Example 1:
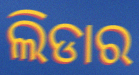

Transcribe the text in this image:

ଲିଡାର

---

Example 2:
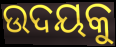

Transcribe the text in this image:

ଉଦୟକୁ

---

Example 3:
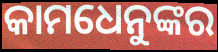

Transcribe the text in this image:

କାମଧେନୁଙ୍କର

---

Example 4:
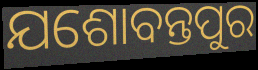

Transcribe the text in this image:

ଯଶୋବନ୍ତପୁର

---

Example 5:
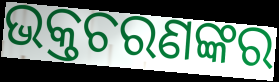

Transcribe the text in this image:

ଭକ୍ତଚରଣଙ୍କର